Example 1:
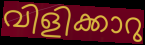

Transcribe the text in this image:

വിളിക്കാറു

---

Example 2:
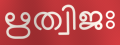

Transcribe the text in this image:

ഋത്വിജഃ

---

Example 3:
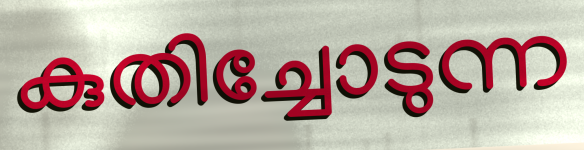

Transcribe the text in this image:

കുതിച്ചോടുന്ന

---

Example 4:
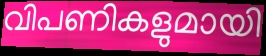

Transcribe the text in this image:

വിപണികളുമായി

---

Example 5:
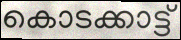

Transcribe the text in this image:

കൊടക്കാട്ട്